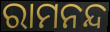
ରାମନନ୍ଦ